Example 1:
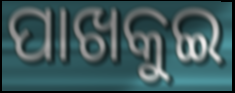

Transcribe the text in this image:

ପାଖକୁଇ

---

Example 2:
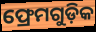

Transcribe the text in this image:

ଫ୍ରେମଗୁଡ଼ିକ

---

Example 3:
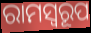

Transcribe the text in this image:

ରାମସ୍ୱରୂପ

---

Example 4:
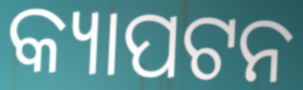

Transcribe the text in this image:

କ୍ୟାପଟନ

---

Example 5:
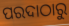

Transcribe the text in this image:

ପରଦାଠାରୁ